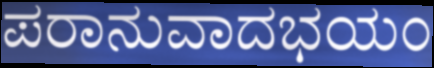
ಪರಾನುವಾದಭಯಂ